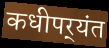
कधीपर्यंत